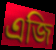
এজি